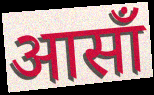
आसाँ